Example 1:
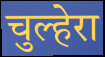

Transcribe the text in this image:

चुल्हेरा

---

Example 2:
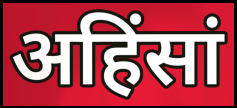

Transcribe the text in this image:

अहिंसां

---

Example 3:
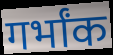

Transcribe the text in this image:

गर्भांक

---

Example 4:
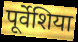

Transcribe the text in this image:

पूर्वेशिया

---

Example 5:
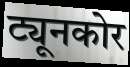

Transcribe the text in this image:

ट्यूनकोर